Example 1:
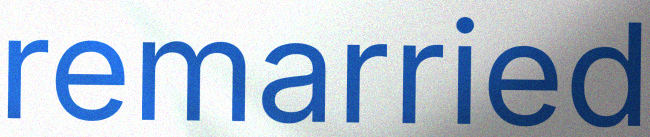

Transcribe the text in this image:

remarried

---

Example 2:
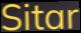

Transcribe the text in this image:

Sitar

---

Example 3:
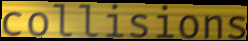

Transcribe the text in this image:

collisions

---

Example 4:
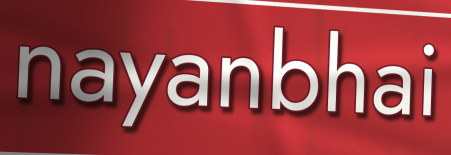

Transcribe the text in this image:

nayanbhai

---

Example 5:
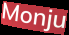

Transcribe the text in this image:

Monju